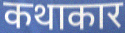
कथाकार